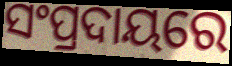
ସଂପ୍ରଦାୟରେ